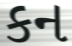
કન